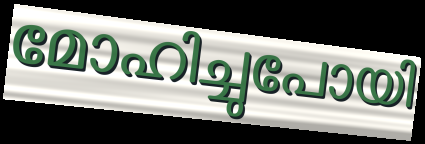
മോഹിച്ചുപോയി